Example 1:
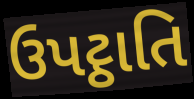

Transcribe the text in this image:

ઉપટ્ઠાતિ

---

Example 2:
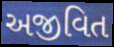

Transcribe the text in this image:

અજીવિત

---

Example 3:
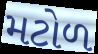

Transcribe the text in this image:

મટોળ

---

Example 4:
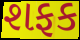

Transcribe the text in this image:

શફક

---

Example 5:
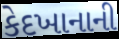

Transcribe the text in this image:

કેદખાનાની